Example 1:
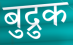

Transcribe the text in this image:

बुद्रुक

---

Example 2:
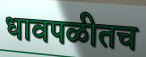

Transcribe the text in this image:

धावपळीतच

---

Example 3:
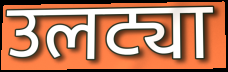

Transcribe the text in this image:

उलट्या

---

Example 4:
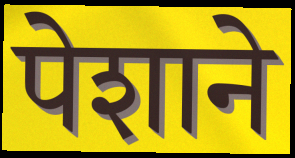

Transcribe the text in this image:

पेशाने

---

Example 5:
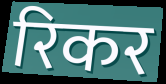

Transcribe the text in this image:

रिकर